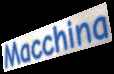
Macchina